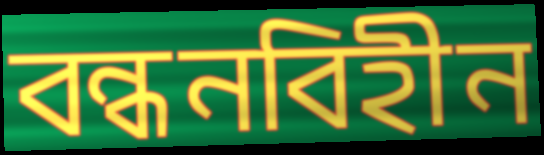
বন্ধনবিহীন